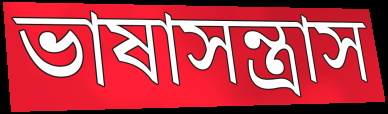
ভাষাসন্ত্রাস